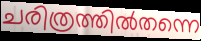
ചരിത്രത്തിൽതന്നെ